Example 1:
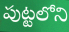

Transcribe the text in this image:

పుట్టలోని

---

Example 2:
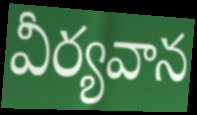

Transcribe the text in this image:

వీర్యవాన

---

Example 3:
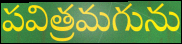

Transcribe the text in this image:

పవిత్రమగును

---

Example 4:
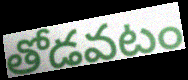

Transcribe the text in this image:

తోడవటం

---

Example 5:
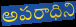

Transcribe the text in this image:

అపరాధిని